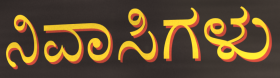
ನಿವಾಸಿಗಳು